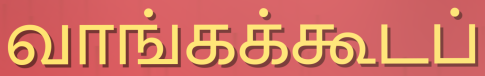
வாங்கக்கூடப்